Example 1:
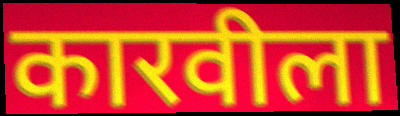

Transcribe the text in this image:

कारवीला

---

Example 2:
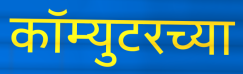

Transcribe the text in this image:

कॉम्युटरच्या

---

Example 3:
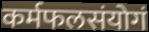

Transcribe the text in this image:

कर्मफलसंयोगं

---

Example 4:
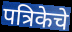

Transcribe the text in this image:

पत्रिकेचे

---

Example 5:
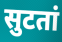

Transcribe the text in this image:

सुटतां